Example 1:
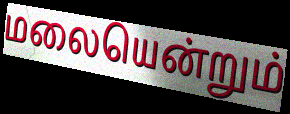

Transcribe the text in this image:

மலையென்றும்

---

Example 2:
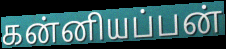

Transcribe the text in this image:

கன்னியப்பன்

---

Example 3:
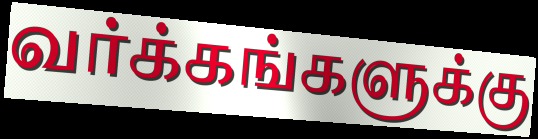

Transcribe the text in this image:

வர்க்கங்களுக்கு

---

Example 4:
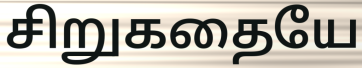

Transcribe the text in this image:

சிறுகதையே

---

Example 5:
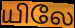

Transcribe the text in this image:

யிலே